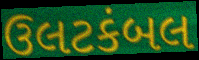
ઉલટકંબલ